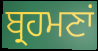
ਬ੍ਰਹਮਣਾਂ